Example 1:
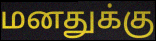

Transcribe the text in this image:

மனதுக்கு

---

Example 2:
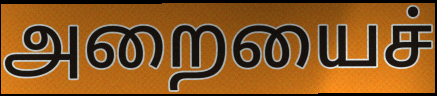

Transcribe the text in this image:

அறையைச்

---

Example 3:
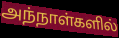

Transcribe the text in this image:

அந்நாள்களில்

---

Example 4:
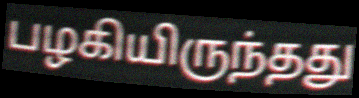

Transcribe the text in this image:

பழகியிருந்தது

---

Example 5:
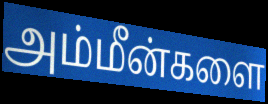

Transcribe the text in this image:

அம்மீன்களை